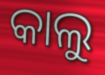
କାଲୁ